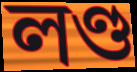
লণ্ড